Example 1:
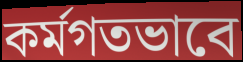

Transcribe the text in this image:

কর্মগতভাবে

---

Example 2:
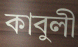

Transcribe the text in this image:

কাবুলী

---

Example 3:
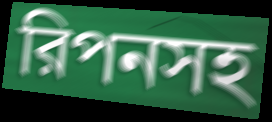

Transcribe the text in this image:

রিপনসহ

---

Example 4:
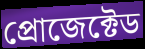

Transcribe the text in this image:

প্রোজেক্টেড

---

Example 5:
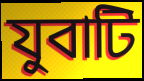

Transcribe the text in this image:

যুবাটি